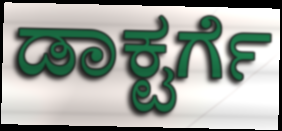
ಡಾಕ್ಟರ್ಗೆ